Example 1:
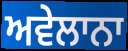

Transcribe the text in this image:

ਅਵੇਲਾਨਾ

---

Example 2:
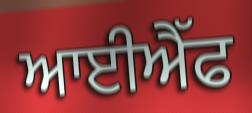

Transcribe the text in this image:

ਆਈਐੱਫ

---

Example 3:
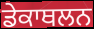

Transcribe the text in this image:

ਡੇਕਾਥਲਨ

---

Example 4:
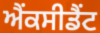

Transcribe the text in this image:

ਐਂਕਸੀਡੈਂਟ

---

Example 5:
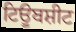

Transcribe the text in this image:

ਟਿਊਬਸ਼ੀਟ